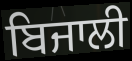
ਬਿਜਾਲੀ